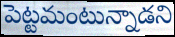
పెట్టమంటున్నాడని